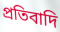
প্রতিবাদি